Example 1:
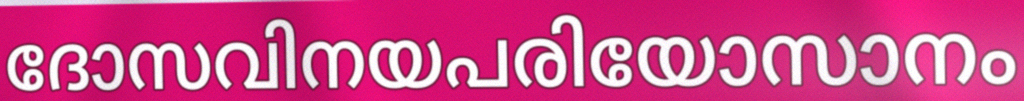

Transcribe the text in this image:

ദോസവിനയപരിയോസാനം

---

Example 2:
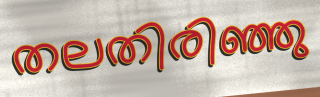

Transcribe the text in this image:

തലതിരിഞ്ഞു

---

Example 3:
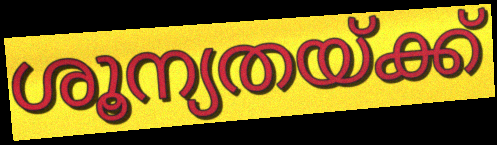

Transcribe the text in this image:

ശൂന്യതയ്ക്ക്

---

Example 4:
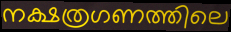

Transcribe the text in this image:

നക്ഷത്രഗണത്തിലെ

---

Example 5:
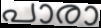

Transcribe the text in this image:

പാരാ